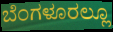
ಬೆಂಗಳೂರಲ್ಲೂ